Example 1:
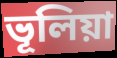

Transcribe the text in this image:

ভূলিয়া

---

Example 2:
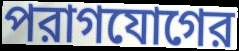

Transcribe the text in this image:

পরাগযোগের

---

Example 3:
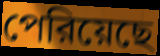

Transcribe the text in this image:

পেরিয়েছে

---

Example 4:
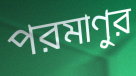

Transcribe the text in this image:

পরমাণুর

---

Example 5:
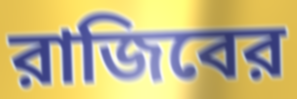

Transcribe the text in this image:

রাজিবের